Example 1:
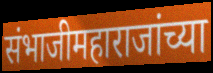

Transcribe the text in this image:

संभाजीमहाराजांच्या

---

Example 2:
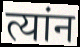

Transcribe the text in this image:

त्यांन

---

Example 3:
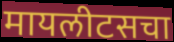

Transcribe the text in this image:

मायलीटसचा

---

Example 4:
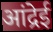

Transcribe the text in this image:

आंद्रेई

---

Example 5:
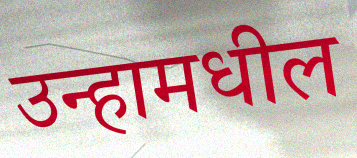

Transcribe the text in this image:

उन्हामधील